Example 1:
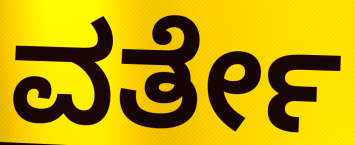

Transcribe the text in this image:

ವರ್ತೇ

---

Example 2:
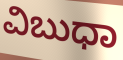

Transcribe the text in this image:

ವಿಬುಧಾ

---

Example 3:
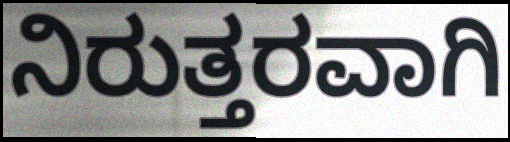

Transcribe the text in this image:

ನಿರುತ್ತರವಾಗಿ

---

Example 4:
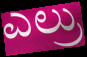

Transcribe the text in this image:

ಎಲ್ರು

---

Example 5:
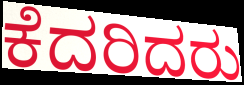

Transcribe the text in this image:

ಕೆದರಿದರು